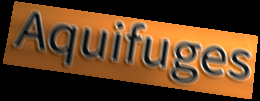
Aquifuges